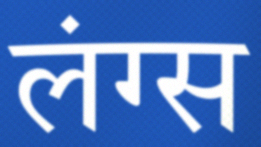
लंग्स